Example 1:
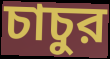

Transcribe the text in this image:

চাচুর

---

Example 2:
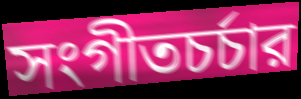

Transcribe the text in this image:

সংগীতচর্চার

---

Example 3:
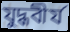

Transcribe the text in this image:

যুদ্ধবীর্য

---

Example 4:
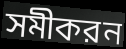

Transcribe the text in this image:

সমীকরন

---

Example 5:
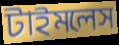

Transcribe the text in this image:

টাইমলেস